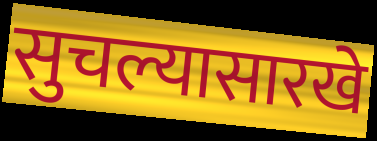
सुचल्यासारखे